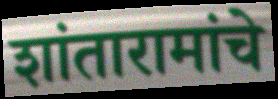
शांतारामांचे